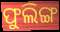
ଫୁଲିଙ୍ଗ